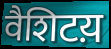
वैशिटय़